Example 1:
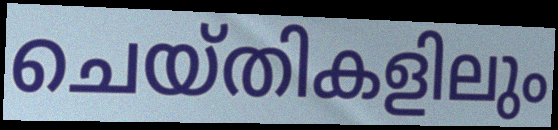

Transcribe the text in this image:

ചെയ്തികളിലും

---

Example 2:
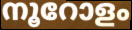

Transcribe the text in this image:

നൂറോളം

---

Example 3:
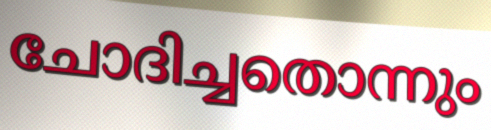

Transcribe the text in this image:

ചോദിച്ചതൊന്നും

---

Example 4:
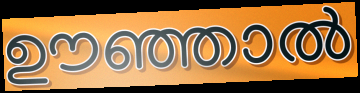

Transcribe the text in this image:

ഊഞ്ഞാൽ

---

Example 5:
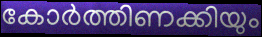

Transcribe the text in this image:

കോർത്തിണക്കിയും